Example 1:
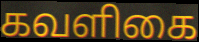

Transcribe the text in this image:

கவளிகை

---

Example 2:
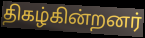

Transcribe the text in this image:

திகழ்கின்றனர்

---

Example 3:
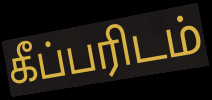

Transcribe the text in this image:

கீப்பரிடம்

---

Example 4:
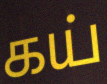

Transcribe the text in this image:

கய்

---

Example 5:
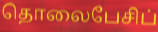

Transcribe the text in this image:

தொலைபேசிப்